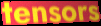
tensors